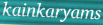
kainkaryams